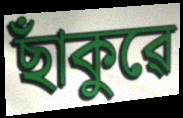
ছাঁকুৱে